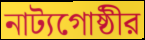
নাট্যগোষ্ঠীর